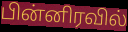
பின்னிரவில்